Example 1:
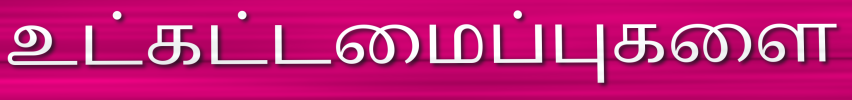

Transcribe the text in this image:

உட்கட்டமைப்புகளை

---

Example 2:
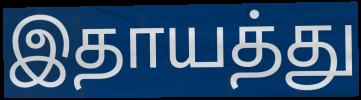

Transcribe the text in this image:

இதாயத்து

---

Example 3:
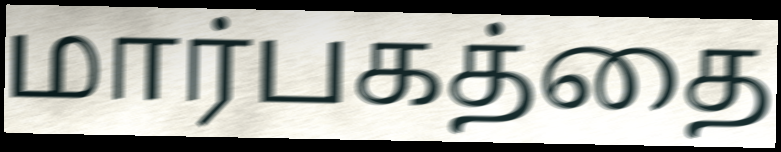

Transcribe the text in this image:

மார்பகத்தை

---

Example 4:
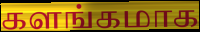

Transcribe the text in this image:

களங்கமாக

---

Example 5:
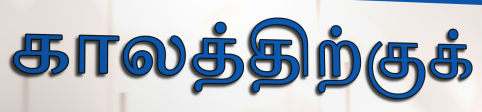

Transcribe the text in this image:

காலத்திற்குக்